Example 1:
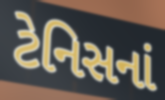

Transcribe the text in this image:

ટેનિસનાં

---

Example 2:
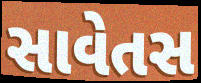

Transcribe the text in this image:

સાવેતસ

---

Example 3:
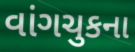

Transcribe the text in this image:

વાંગચુકના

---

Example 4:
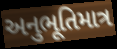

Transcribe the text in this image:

અનુભૂતિમાત્ર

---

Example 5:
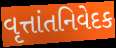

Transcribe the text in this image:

વૃત્તાંતનિવેદક